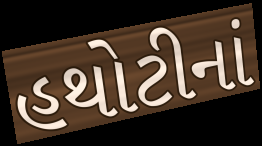
હથોટીનાં